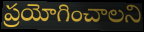
ప్రయోగించాలని